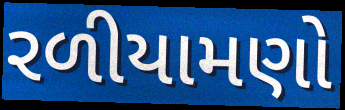
રળીયામણો